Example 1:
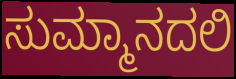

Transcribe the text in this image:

ಸುಮ್ಮಾನದಲಿ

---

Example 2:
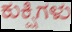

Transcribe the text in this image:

ಕುಕ್ಷಿಗಳು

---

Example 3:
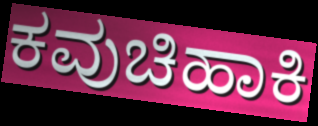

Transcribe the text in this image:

ಕವುಚಿಹಾಕಿ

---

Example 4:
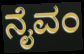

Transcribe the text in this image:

ನೈವಂ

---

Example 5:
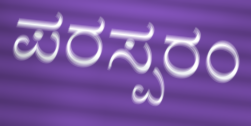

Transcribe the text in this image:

ಪರಸ್ಪರಂ